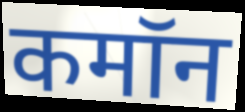
कमॉन